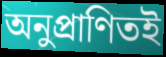
অনুপ্রাণিতই